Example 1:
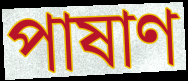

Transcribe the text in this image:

পাষাণ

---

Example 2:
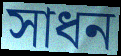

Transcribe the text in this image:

সাধন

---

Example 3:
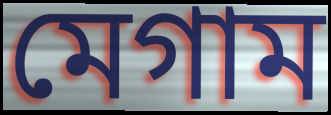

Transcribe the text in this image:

মেগাম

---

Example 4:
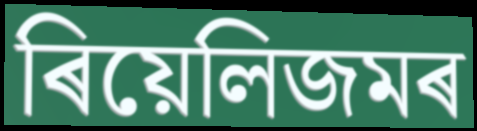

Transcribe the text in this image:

ৰিয়েলিজমৰ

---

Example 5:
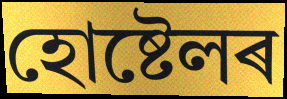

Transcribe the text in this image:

হোষ্টেলৰ